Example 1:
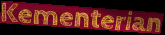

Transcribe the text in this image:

Kementerian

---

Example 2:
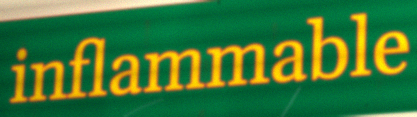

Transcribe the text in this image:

inflammable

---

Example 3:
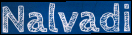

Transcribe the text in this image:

Nalvadi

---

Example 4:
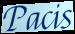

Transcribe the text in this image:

Pacis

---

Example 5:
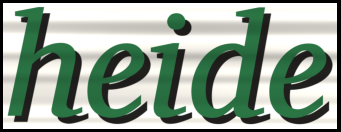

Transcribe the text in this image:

heide